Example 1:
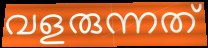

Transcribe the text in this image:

വളരുന്നത്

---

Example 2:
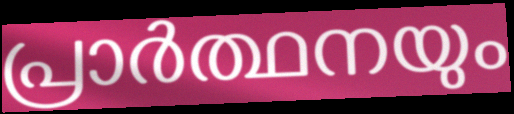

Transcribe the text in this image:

പ്രാർത്ഥനയും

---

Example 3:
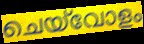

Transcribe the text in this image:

ചെയ്‌വോളം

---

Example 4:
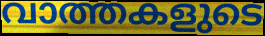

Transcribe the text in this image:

വാത്തകളുടെ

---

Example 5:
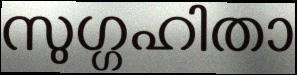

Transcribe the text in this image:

സുഗ്ഗഹിതാ